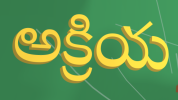
అక్రియ